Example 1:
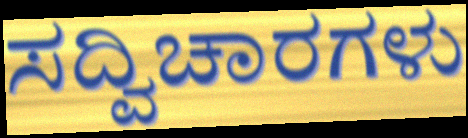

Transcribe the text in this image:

ಸದ್ವಿಚಾರಗಳು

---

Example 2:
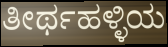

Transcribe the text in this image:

ತೀರ್ಥಹಳ್ಳಿಯ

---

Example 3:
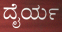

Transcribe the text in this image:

ದೈರ್ಯ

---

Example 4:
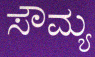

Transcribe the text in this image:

ಸೌಮ್ಯ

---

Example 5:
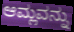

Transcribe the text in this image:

ಆಮ್ಲವನ್ನು